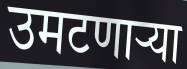
उमटणाऱ्या